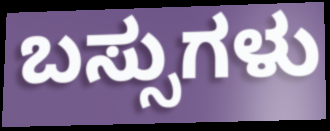
ಬಸ್ಸುಗಳು